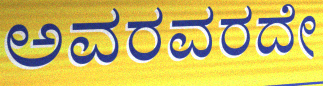
ಅವರವರದೇ